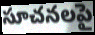
సూచనలపై